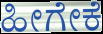
ಹೀಗೇಕೆ